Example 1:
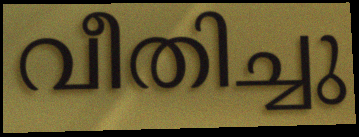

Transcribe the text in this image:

വീതിച്ചു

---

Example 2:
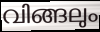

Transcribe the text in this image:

വിങ്ങലും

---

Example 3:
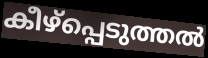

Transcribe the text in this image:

കീഴ്പ്പെടുത്തൽ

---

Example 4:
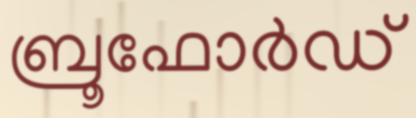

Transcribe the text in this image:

ബ്രൂഫോർഡ്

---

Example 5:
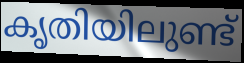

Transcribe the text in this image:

കൃതിയിലുണ്ട്